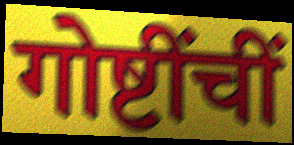
गोष्टींचीं